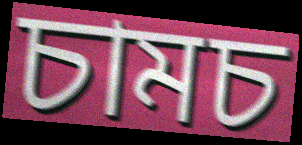
চামচ